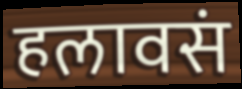
हलावसं